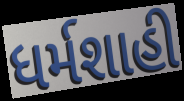
ધર્મશાહી